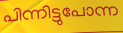
പിന്നിട്ടുപോന്ന